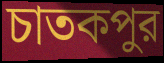
চাতকপুর